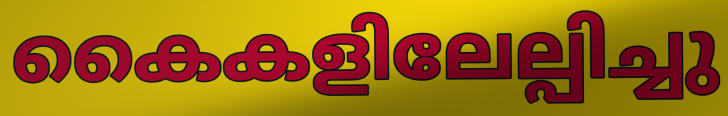
കൈകളിലേല്പിച്ചു